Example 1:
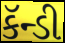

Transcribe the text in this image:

કૅન્ડી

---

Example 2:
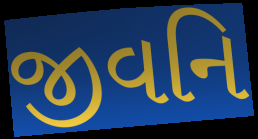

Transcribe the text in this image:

જીવનિ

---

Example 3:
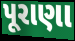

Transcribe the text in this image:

પૂરાણા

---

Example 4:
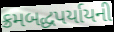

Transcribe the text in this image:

ક્રમબદ્ધપર્યાયની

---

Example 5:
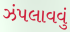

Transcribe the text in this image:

ઝંપલાવવું